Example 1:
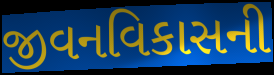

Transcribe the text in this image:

જીવનવિકાસની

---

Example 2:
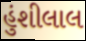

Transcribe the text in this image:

હુંશીલાલ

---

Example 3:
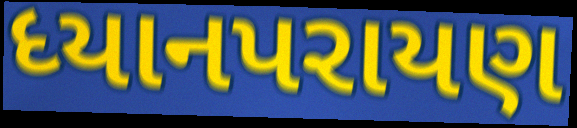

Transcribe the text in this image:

ધ્યાનપરાયણ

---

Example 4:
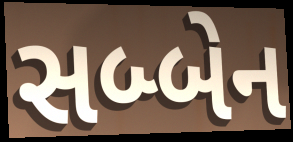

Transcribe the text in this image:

સબ્બેન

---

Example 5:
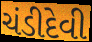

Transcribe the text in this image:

ચંડીદેવી